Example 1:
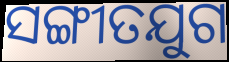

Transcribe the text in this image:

ସଙ୍ଗୀତଯୁଗ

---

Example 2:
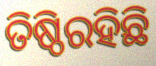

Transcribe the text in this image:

ତିଷ୍ଠିରହିଛି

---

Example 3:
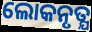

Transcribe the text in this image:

ଲୋକନୃତ୍ଯ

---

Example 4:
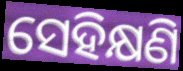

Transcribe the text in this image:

ସେହିକ୍ଷଣି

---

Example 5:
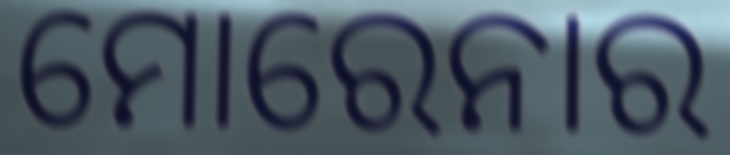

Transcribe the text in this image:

ମୋରେନାର